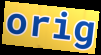
orig